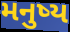
મનુષ્ય